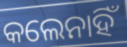
କଲେନାହିଁ